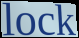
lock